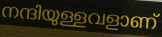
നന്ദിയുള്ളവളാണ്